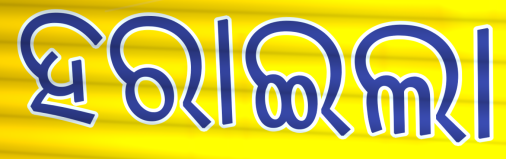
ହରାଇଲା